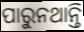
ପାରୁନଥାନ୍ତି